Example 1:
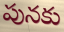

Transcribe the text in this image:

పునకు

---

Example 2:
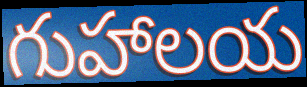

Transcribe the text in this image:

గుహాలయ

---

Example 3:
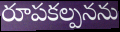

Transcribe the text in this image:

రూపకల్పనను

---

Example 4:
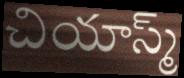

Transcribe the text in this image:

చియాస్మ్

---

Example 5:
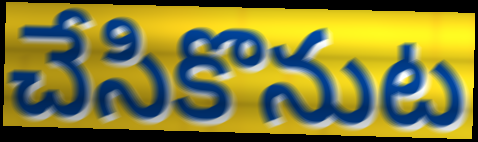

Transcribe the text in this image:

చేసికొనుట